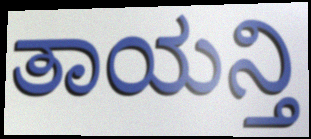
ತಾಯನ್ತಿ